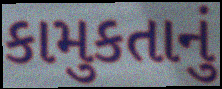
કામુકતાનું